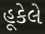
હૂકેલે